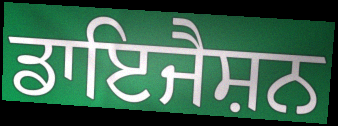
ਡਾਇਜੈਸ਼ਨ